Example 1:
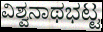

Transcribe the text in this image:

ವಿಶ್ವನಾಥಭಟ್ಟ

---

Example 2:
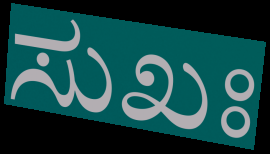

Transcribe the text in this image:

ಸುಖಃ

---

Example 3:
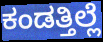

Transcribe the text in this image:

ಕಂಡತ್ತಿಲ್ಲೆ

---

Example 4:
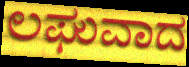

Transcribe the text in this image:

ಲಘುವಾದ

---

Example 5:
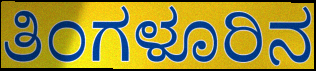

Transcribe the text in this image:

ತಿಂಗಳೂರಿನ